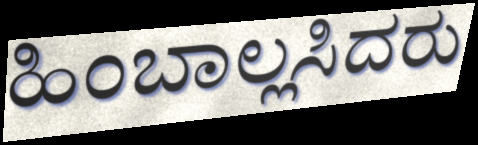
ಹಿಂಬಾಲ್ಲಸಿದರು